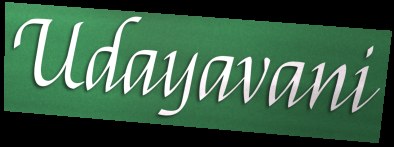
Udayavani